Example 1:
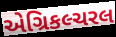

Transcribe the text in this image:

એગ્રિકલ્ચરલ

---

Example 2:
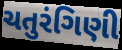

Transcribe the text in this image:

ચતુરંગિણી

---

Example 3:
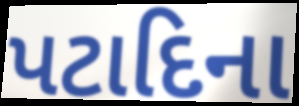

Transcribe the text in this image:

પટાદિના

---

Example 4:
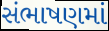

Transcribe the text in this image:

સંભાષણમાં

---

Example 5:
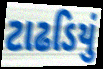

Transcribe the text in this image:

ટાઢડિયું